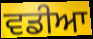
ਵਡੀਆ